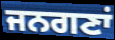
ਜਨਗਣਾਂ